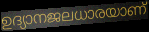
ഉദ്യാനജലധാരയാണ്